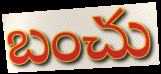
బంచు